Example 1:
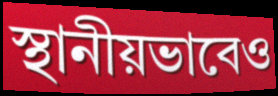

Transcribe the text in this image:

স্থানীয়ভাবেও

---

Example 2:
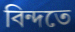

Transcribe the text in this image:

বিন্দতে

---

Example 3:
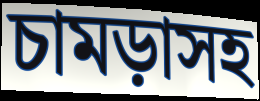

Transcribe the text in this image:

চামড়াসহ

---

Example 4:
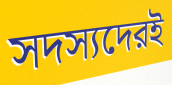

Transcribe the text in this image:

সদস্যদেরই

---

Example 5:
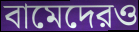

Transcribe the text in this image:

বামেদেরও